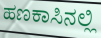
ಹಣಕಾಸಿನಲ್ಲಿ